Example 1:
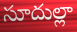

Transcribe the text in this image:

సూదుల్లా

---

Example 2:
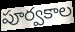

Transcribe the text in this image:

పూర్వకాల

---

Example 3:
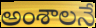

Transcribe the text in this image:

అంశాలనే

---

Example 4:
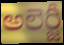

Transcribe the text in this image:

అలెర్జీ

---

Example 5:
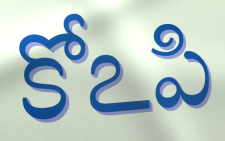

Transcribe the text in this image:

కోఽపి